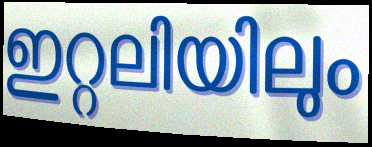
ഇറ്റലിയിലും